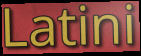
Latini